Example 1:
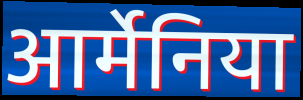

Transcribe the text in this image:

आर्मेनिया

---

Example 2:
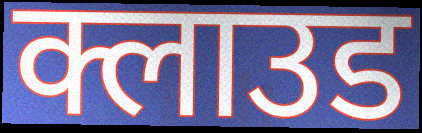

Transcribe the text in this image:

क्लाउड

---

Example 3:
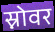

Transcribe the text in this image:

स्नोवर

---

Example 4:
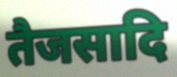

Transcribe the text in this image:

तैजसादि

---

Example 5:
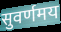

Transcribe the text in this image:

सुवर्णमय